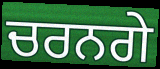
ਚਰਨਗੇ